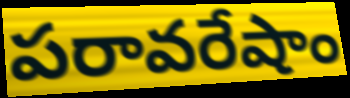
పరావరేషాం